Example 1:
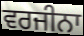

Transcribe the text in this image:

ਵਰਜੀਨਾ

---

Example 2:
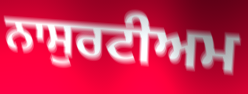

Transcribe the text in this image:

ਨਾਸੁਰਟੀਅਮ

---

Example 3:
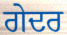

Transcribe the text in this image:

ਗੇਦਰ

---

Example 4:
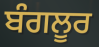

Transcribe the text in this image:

ਬੰਗਲੂਰ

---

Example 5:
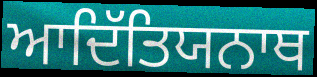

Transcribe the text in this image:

ਆਦਿੱਤਿਯਨਾਥ